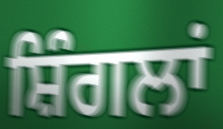
ਸ਼ਿੰਗਲਾਂ